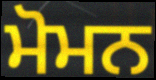
ਮੋਮਨ